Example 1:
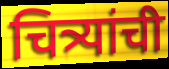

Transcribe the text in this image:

चित्र्यांची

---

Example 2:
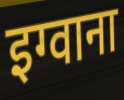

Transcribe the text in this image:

इग्वाना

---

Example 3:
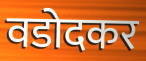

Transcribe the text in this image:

वडोदकर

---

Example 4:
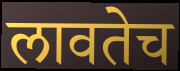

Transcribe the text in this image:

लावतेच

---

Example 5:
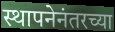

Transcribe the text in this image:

स्थापनेनंतरच्या